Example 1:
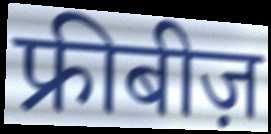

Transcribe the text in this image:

फ्रीबीज़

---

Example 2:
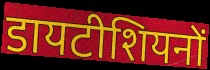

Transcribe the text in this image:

डायटीशियनों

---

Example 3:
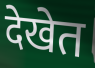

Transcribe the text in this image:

देखेत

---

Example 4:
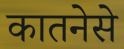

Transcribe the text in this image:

कातनेसे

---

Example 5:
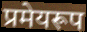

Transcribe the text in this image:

प्रमेयरूप